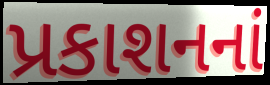
પ્રકાશનનાં